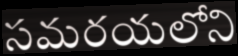
సమరయలోని